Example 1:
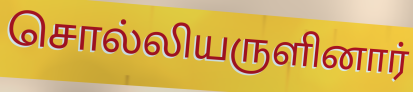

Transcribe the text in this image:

சொல்லியருளினார்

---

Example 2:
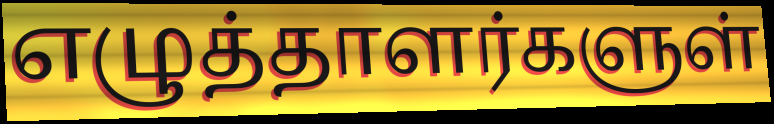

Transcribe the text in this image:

எழுத்தாளர்களுள்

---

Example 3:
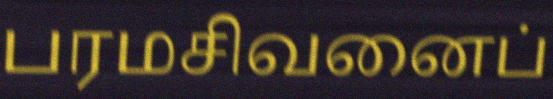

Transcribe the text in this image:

பரமசிவனைப்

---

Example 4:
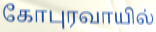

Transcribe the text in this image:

கோபுரவாயில்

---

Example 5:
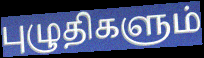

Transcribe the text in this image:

புழுதிகளும்